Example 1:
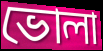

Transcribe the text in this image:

ভোলা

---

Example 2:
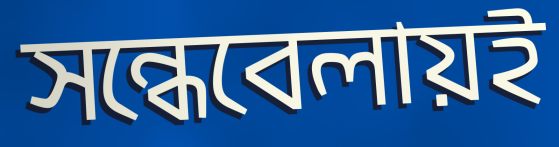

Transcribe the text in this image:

সন্ধেবেলায়ই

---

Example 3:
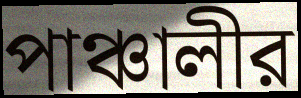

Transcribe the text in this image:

পাঞ্চালীর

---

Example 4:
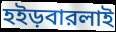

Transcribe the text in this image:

হইড়বারলাই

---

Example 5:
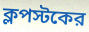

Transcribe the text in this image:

ক্লপস্টকের